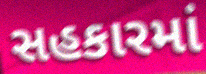
સહકારમાં